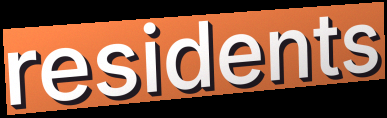
residents